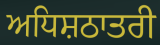
ਅਧਿਸ਼ਠਾਤਰੀ